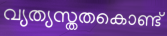
വ്യത്യസ്തതകൊണ്ട്